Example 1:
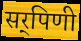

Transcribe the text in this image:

सर्पिणी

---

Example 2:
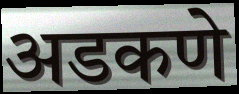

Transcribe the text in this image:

अडकणे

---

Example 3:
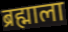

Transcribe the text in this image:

ब्रह्माला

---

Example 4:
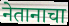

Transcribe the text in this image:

नेतानाचा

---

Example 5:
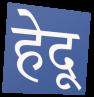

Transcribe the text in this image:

हेदू